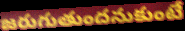
జరుగుతుందనుకుంటే